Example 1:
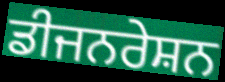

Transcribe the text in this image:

ਡੀਜਨਰੇਸ਼ਨ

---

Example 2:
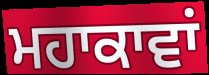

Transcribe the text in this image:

ਮਹਾਕਾਵਾਂ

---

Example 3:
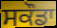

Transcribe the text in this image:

ਸਕੌਡਾ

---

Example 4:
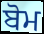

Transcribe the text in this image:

ਬੋਮ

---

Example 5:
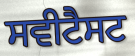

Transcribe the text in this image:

ਸਵੀਟੈਸਟ